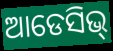
ଆଡେସିଭ୍